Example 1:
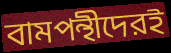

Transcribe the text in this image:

বামপন্থীদেরই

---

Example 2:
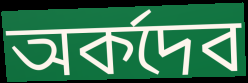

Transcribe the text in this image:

অর্কদেব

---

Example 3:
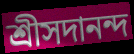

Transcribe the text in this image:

শ্রীসদানন্দ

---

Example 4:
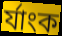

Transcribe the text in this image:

র্যাংক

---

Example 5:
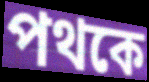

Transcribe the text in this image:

পথকে